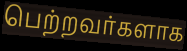
பெற்றவர்களாக